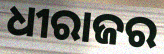
ଧୀରାଜର